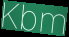
Kbm